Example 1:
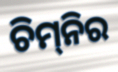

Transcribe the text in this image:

ଚିମ୍‌ନିର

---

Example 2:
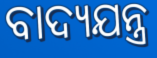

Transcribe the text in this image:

ବାଦ୍ୟଯନ୍ତ୍ର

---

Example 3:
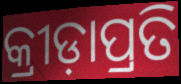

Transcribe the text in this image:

କ୍ରୀଡ଼ାପ୍ରତି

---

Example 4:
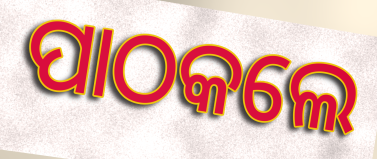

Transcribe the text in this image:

ପାଠକଲେ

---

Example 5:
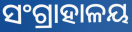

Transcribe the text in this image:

ସଂଗ୍ରାହାଳୟ